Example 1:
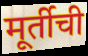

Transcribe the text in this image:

मूर्तीची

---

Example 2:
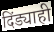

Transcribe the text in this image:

दिंड्याही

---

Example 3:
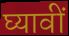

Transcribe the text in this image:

घ्यावीं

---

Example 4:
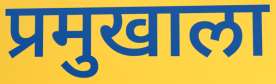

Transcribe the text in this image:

प्रमुखाला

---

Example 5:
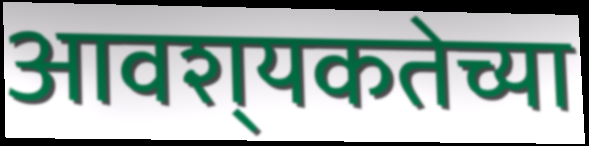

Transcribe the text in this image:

आवश्यकतेच्या